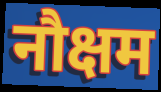
नौक्षम